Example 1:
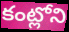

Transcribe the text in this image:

కంట్లోని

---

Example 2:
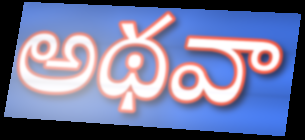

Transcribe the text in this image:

అథవా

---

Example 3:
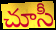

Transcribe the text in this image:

చూసీ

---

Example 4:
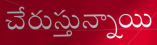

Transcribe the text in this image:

చేరుస్తున్నాయి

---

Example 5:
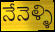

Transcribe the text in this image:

నేనెళ్ళి